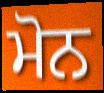
ਮੋਨ